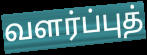
வளர்ப்புத்